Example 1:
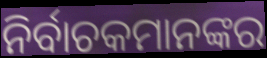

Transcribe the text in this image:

ନିର୍ବାଚକମାନଙ୍କର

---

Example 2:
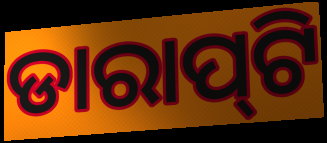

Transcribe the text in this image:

ଡାରାପ୍‌ଟି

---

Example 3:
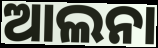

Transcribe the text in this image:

ଆଲନା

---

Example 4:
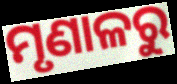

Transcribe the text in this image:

ମୃଣାଳରୁ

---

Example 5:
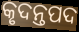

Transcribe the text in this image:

କୃଦନ୍ତପଦ